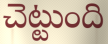
చెట్టుంది